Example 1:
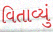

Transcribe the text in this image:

વિતાવ્યું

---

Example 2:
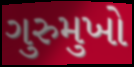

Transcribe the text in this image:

ગુરુમુખો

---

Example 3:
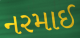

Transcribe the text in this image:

નરમાઈ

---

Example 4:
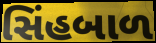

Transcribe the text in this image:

સિંહબાળ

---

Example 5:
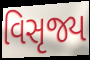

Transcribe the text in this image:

વિસૃજ્ય